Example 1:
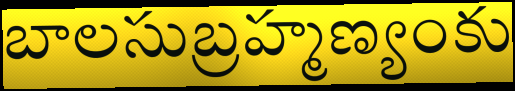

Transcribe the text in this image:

బాలసుబ్రహ్మణ్యంకు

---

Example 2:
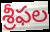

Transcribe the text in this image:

శ్రీఫల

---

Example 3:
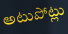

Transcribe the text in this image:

అటుపోట్లు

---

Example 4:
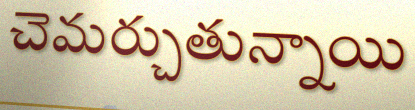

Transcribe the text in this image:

చెమర్చుతున్నాయి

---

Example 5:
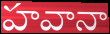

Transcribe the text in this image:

హవానా